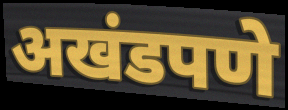
अखंडपणे